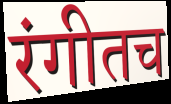
रंगीतच